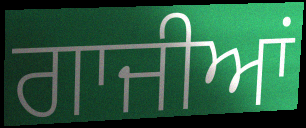
ਗਾਜੀਆਂ